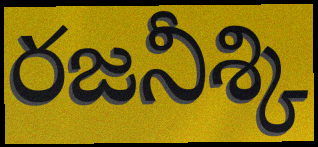
రజనీశ్కి